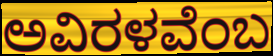
ಅವಿರಳವೆಂಬ